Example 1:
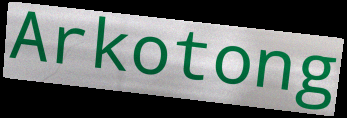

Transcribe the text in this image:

Arkotong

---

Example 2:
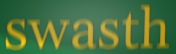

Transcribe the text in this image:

swasth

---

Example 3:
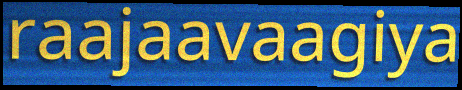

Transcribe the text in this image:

raajaavaagiya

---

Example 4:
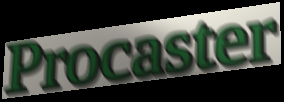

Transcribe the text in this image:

Procaster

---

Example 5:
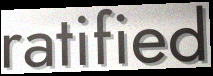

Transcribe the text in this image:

ratified